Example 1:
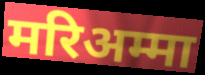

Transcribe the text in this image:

मरिअम्मा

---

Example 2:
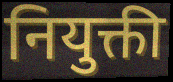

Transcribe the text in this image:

नियुक्ती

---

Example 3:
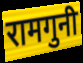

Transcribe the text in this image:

रामगुनी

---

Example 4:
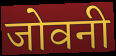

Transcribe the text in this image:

जोवनी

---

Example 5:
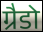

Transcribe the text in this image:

ग्रैडो